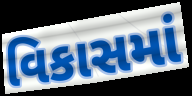
વિકાસમાં